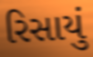
રિસાયું